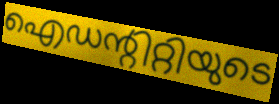
ഐഡന്റിറ്റിയുടെ